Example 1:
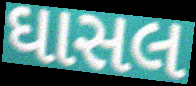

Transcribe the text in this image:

ઘાસલ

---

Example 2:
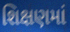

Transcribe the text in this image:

શિક્ષણમાં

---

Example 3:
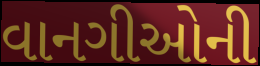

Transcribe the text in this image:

વાનગીઓની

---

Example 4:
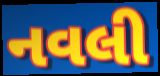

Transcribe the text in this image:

નવલી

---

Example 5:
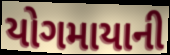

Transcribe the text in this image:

યોગમાયાની